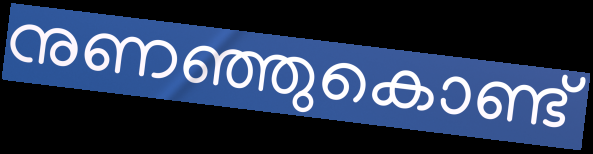
നുണഞ്ഞുകൊണ്ട്